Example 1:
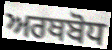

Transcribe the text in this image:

ਅਰਥਬੋਧ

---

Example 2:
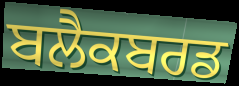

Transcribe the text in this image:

ਬਲੈਕਬਰਡ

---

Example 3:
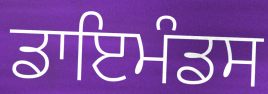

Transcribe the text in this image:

ਡਾਇਮੰਡਸ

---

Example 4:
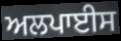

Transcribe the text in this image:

ਅਲਪਾਈਸ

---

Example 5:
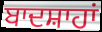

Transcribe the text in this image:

ਬਾਦਸ਼ਾਹਾਂ